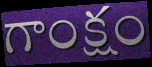
గాంక్షం